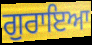
ਗੁਰਾਇਆ